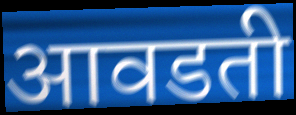
आवडती